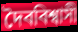
দৈববিশ্বাসী